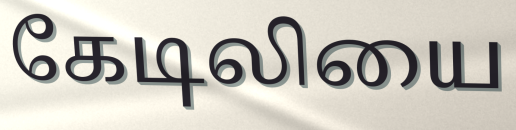
கேடிலியை